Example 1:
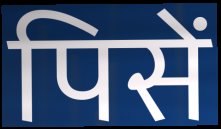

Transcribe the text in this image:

पिसें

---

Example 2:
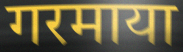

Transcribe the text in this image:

गरमाया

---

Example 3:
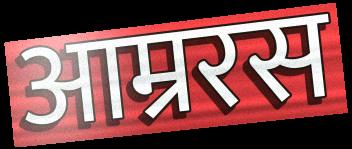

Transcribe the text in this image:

आम्ररस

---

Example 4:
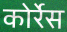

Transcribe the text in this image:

कोर्रेस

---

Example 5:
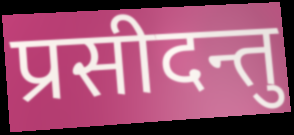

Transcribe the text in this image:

प्रसीदन्तु